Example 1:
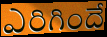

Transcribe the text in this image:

ఎరిగిందే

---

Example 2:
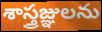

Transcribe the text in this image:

శాస్త్రజ్ఞులను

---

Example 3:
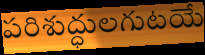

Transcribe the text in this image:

పరిశుద్ధులగుటయే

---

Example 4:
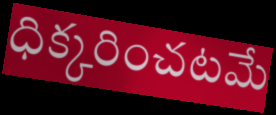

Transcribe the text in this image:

ధిక్కరించటమే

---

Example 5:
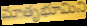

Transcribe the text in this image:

మాతృభూమిని